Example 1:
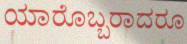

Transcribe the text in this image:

ಯಾರೊಬ್ಬರಾದರೂ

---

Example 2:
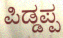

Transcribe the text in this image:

ಪಿಡ್ಡಪ್ಪ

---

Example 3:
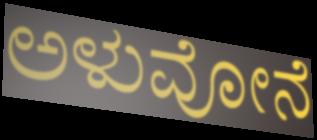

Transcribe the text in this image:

ಅಳುವೋನೆ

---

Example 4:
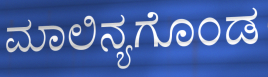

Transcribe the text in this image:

ಮಾಲಿನ್ಯಗೊಂಡ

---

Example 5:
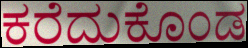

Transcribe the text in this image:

ಕರೆದುಕೊಂಡ